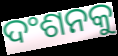
ଦଂଶନକୁ